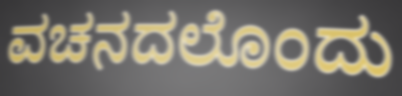
ವಚನದಲೊಂದು